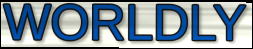
WORLDLY